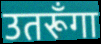
उतरूँगा